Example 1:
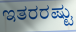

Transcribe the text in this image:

ಇತರರಷ್ಟು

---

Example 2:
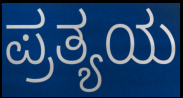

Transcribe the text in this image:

ಪ್ರತ್ಯಯ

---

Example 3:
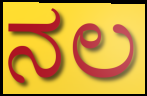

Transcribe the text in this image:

ನಲ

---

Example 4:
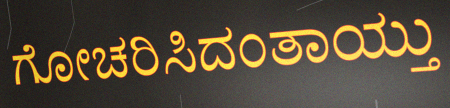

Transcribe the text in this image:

ಗೋಚರಿಸಿದಂತಾಯ್ತು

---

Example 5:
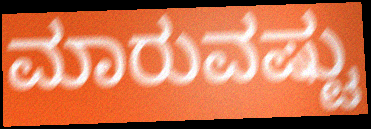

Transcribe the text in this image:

ಮಾರುವಷ್ಟು